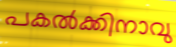
പകൽക്കിനാവു